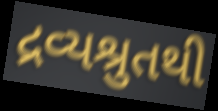
દ્રવ્યશ્રુતથી